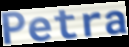
Petra